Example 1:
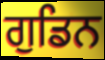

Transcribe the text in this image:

ਗੁਡਿਨ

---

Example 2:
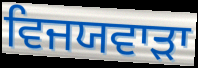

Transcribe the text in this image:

ਵਿਜਯਵਾੜਾ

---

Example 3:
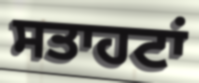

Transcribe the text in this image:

ਸਤਾਹਟਾਂ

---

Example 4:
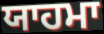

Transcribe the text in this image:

ਯਾਹਮਾ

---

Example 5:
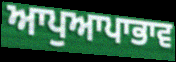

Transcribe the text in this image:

ਆਪੁਆਪਾਭਾਵ